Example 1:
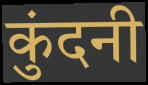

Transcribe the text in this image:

कुंदनी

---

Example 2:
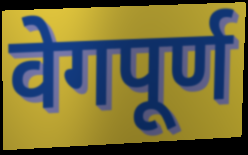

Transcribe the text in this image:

वेगपूर्ण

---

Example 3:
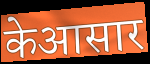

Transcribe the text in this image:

केआसार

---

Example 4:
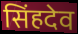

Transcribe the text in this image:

सिंहदेव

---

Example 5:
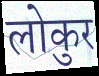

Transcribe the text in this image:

लोकुर